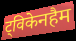
ट्विकेनहैम